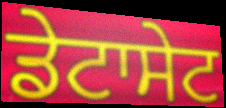
ਡੇਟਾਸੇਟ